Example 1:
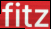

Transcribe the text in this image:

fitz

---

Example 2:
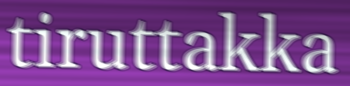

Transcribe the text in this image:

tiruttakka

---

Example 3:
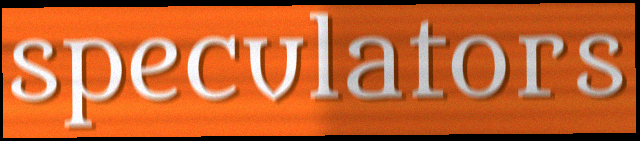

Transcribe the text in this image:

speculators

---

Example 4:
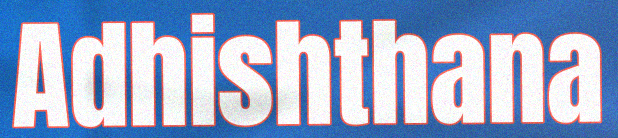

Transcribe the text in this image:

Adhishthana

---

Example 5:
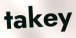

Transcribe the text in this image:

takey